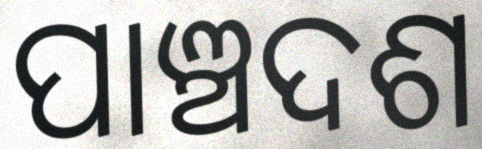
ପାଞ୍ଚଦଶ